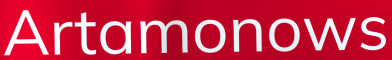
Artamonows